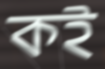
কই